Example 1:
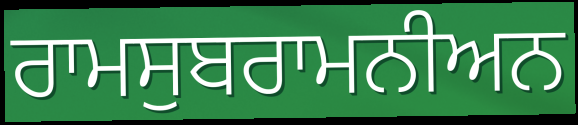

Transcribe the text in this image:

ਰਾਮਸੁਬਰਾਮਨੀਅਨ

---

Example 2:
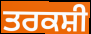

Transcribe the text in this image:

ਤਰਕਸ਼ੀ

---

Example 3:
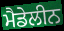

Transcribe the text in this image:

ਮੈਡੇਲੀਨ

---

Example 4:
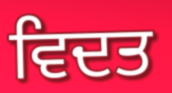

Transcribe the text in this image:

ਵਿਦਤ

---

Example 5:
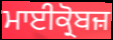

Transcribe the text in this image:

ਮਾਈਕ੍ਰੋਬਜ਼